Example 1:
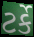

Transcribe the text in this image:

ટર્કે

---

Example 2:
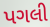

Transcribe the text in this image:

પગલી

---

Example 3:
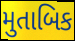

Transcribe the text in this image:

મુતાબિક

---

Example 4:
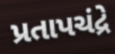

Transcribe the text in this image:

પ્રતાપચંદ્રે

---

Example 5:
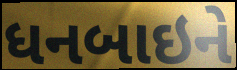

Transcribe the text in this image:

ધનબાઇને